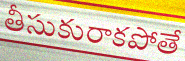
తీసుకురాకపోతే